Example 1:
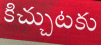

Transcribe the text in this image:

కిచ్చుటకు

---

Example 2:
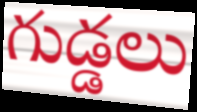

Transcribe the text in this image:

గుడ్డలు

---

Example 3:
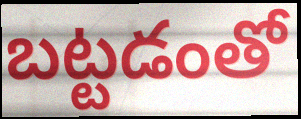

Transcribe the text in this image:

బట్టడంతో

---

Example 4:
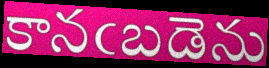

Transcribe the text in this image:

కానఁబడెను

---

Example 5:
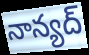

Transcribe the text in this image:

నాన్యద్